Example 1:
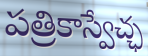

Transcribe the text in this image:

పత్రికాస్వేచ్ఛ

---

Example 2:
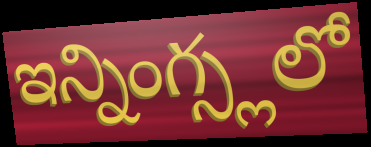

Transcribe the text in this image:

ఇన్నింగ్స్లలో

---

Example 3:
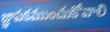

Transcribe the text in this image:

జ్ఞాపకముంచుకోవాలి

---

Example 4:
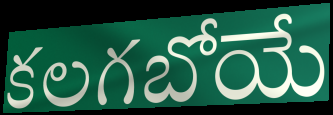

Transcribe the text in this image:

కలగబోయే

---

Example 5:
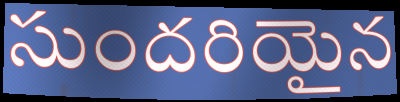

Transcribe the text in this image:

సుందరియైన